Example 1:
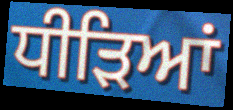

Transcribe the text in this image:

ਧੀੜਿਆਂ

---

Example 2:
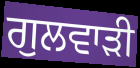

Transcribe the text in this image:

ਗੁਲਵਾੜੀ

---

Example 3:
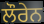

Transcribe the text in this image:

ਲੌਰੇਨ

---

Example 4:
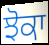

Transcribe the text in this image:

ਝੋਕਾ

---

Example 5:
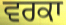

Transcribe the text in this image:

ਵਰਕਾ